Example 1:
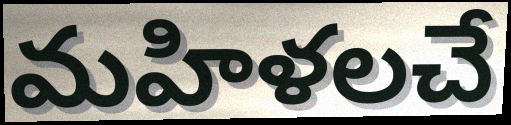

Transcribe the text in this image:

మహిళలచే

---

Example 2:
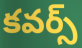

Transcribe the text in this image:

కవర్స్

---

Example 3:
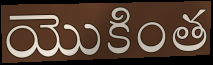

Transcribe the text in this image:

యొకింత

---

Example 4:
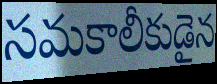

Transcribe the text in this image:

సమకాలీకుడైన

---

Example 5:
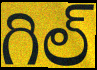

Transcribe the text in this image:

గిల్